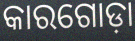
କାରଗୋଡ଼ା